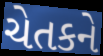
ચેતકને